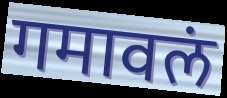
गमावलं